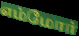
எம்மோர்